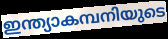
ഇന്ത്യാകമ്പനിയുടെ